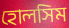
হোলসিম